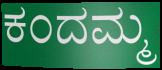
ಕಂದಮ್ಮ